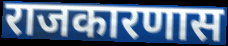
राजकारणास